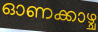
ഓണക്കാഴ്ച